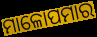
ମାଳୋପମାର